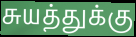
சுயத்துக்கு